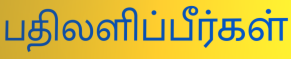
பதிலளிப்பீர்கள்